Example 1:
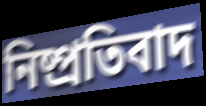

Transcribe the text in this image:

নিষ্প্রতিবাদ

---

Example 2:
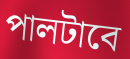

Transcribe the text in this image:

পালটাবে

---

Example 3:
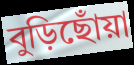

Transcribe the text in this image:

বুড়িছোঁয়া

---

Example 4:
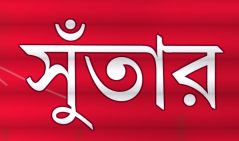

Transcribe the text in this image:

সুঁতার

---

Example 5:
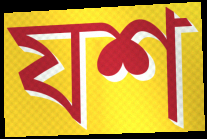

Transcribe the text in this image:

যশ